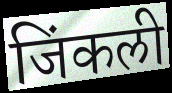
जिंकली